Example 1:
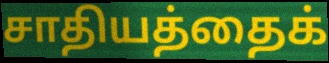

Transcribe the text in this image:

சாதியத்தைக்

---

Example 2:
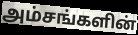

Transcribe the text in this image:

அம்சங்களின்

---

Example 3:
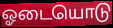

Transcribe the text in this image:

ஓடையொடு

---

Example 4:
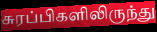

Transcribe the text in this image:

சுரப்பிகளிலிருந்து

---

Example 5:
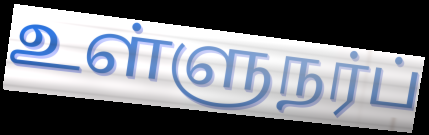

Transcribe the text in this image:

உள்ளுநர்ப்